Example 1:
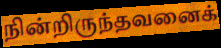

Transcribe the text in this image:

நின்றிருந்தவனைக்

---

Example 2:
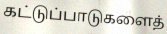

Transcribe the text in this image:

கட்டுப்பாடுகளைத்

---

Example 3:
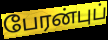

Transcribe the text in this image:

பேரன்புப்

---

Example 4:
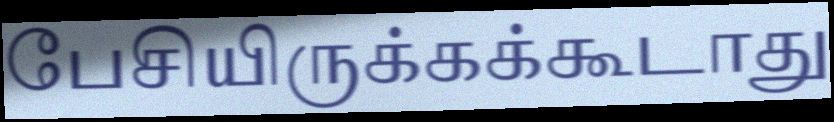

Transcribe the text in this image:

பேசியிருக்கக்கூடாது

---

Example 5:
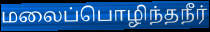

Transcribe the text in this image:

மலைப்பொழிந்தநீர்